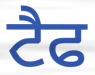
ਟੈਫ